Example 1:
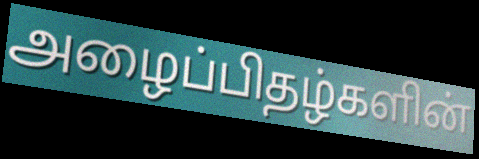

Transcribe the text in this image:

அழைப்பிதழ்களின்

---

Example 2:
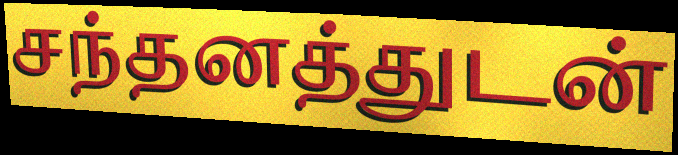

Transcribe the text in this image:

சந்தனத்துடன்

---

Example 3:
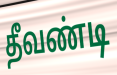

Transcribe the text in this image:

தீவண்டி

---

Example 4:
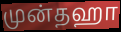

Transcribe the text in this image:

முன்தஹா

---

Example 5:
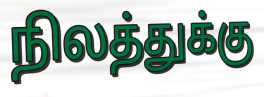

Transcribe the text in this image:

நிலத்துக்கு